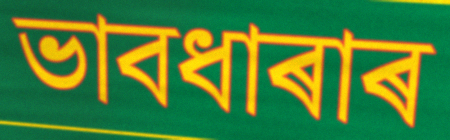
ভাবধাৰাৰ